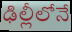
ఢిల్లీలోనే